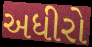
અધીરો